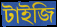
টাইজি